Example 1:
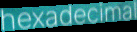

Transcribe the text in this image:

hexadecimal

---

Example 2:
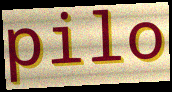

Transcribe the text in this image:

pilo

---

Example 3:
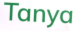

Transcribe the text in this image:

Tanya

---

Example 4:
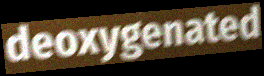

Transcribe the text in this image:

deoxygenated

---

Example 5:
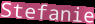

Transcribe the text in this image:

Stefanie